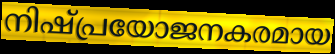
നിഷ്പ്രയോജനകരമായ